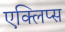
एक्लिप्स